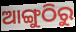
ଆଙ୍ଗୁଠିରୁ